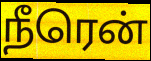
நீரென்